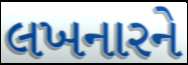
લખનારને